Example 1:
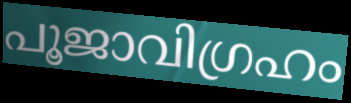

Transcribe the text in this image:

പൂജാവിഗ്രഹം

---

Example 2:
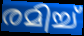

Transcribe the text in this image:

രമിച്ച്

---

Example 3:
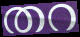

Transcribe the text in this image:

തറ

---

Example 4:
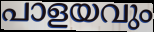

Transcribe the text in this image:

പാളയവും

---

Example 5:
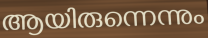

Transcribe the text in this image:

ആയിരുന്നെന്നും